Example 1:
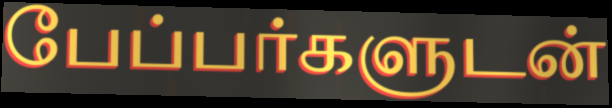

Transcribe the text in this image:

பேப்பர்களுடன்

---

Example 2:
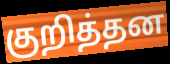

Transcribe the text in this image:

குறித்தன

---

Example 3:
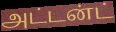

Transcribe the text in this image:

அட்டன்ட்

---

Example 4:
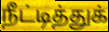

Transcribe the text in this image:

நீட்டித்துக்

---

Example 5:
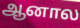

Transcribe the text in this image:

ஆனால